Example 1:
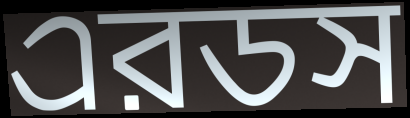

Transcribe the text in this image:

এরডস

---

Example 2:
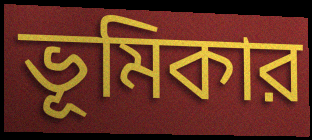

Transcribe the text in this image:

ভূমিকার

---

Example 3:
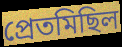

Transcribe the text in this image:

প্রেতমিছিল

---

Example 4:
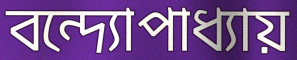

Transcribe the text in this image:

বন্দ্যোপাধ্যায়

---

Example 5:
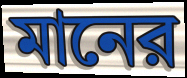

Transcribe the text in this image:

মানের